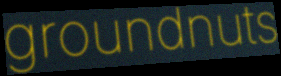
groundnuts